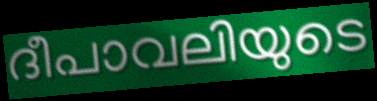
ദീപാവലിയുടെ